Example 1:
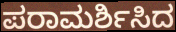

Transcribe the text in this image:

ಪರಾಮರ್ಶಿಸಿದ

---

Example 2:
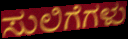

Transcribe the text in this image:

ಸುಲಿಗೆಗಳು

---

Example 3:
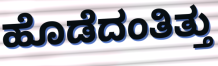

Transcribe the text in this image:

ಹೊಡೆದಂತಿತ್ತು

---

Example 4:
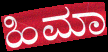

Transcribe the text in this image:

ಹಿಮಾ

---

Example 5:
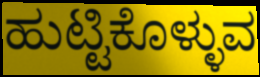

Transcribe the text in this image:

ಹುಟ್ಟಿಕೊಳ್ಳುವ